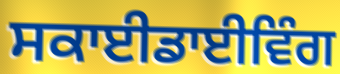
ਸਕਾਈਡਾਈਵਿੰਗ